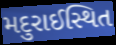
મદુરાઈસ્થિત